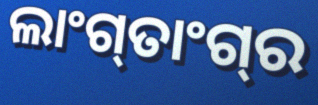
ଲାଂଗ୍‍ତାଂଗ୍‍ର